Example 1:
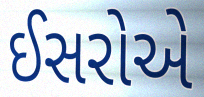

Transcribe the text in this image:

ઈસરોએ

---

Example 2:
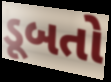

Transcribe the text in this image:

ડૂબતો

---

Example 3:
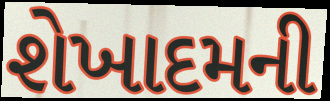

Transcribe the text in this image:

શેખાદમની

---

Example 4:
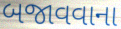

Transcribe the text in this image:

બજાવવાના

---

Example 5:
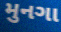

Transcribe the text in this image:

મુનગા